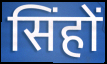
सिंहों